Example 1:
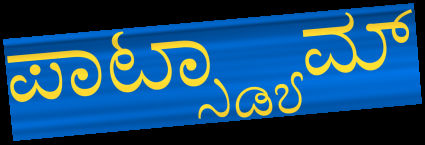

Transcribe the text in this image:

ಪಾಟ್ಸ್ಡ್ಯಾಮ್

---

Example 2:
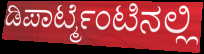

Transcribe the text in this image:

ಡಿಪಾರ್ಟ್ಮೆಂಟಿನಲ್ಲಿ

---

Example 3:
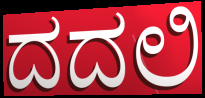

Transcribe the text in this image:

ದದಲಿ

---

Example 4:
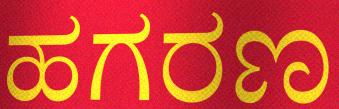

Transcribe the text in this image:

ಹಗರಣ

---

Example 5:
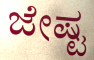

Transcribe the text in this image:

ಜೇಷ್ಟ